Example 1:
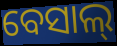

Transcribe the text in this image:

ବେସାଲ୍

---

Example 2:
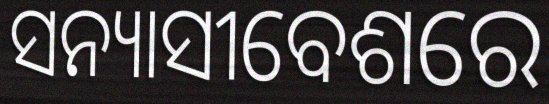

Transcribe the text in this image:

ସନ୍ୟାସୀବେଶରେ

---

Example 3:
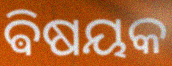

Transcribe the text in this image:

ଵିଷୟକ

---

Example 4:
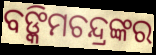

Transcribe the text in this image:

ବଙ୍କିମଚନ୍ଦ୍ରଙ୍କର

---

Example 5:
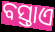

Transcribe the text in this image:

ବସ୍ତାଏ